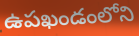
ఉపఖండంలోని